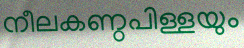
നീലകണ്ഠപിള്ളയും